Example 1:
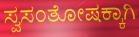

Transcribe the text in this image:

ಸ್ವಸಂತೋಷಕ್ಕಾಗಿ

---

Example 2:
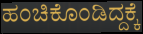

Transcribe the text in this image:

ಹಂಚಿಕೊಂಡಿದ್ದಕ್ಕೆ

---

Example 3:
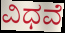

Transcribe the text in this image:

ವಿಧವೆ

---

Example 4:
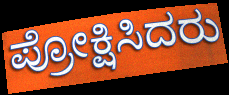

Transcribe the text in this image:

ಪ್ರೋಕ್ಷಿಸಿದರು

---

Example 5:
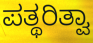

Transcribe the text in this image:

ಪತ್ಥರಿತ್ವಾ